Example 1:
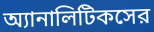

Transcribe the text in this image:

অ্যানালিটিকসের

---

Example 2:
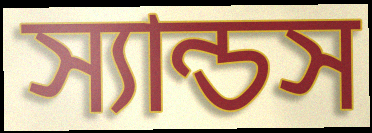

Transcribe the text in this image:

স্যান্ডস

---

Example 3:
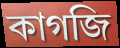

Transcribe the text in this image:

কাগজি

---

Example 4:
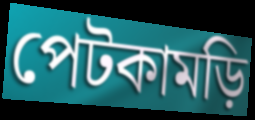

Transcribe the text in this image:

পেটকামড়ি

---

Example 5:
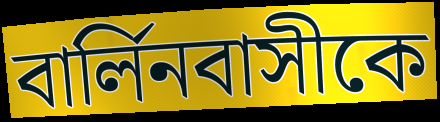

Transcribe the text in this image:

বার্লিনবাসীকে